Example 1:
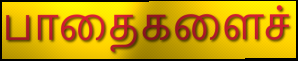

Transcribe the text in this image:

பாதைகளைச்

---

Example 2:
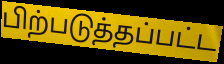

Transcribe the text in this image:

பிற்படுத்தப்பட்ட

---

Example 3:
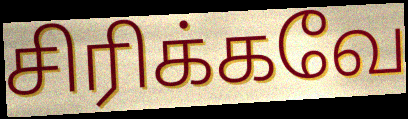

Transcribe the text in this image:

சிரிக்கவே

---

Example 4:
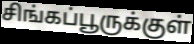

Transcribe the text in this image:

சிங்கப்பூருக்குள்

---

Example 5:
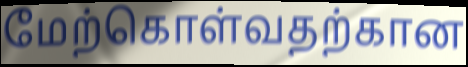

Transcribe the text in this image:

மேற்கொள்வதற்கான